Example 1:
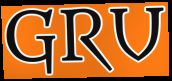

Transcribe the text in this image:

GRU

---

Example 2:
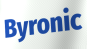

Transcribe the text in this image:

Byronic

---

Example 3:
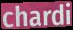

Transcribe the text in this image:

chardi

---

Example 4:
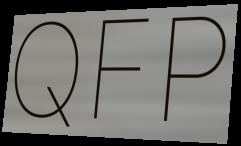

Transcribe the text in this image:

QFP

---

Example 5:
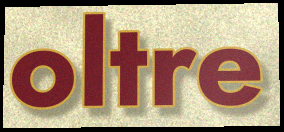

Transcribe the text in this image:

oltre